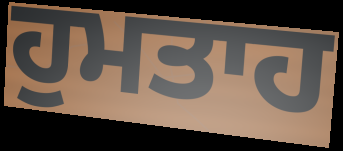
ਹੁਮਤਾਹ